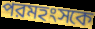
পরমহংসকে